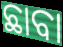
ଛାବା